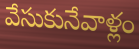
వేసుకునేవాళ్లం